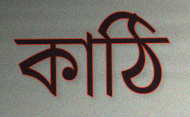
কাঠি